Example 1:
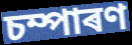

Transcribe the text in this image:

চম্পাৰণ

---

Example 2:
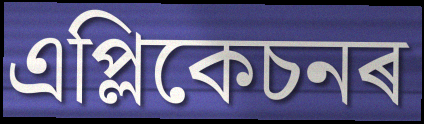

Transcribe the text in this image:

এপ্লিকেচনৰ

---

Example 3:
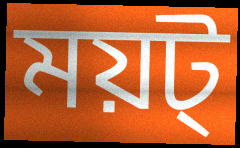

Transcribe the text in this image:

ময়ট্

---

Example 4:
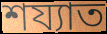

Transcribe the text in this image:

শয্যাত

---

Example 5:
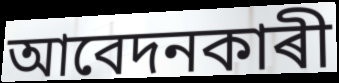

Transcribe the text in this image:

আবেদনকাৰী